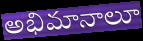
అభిమానాలూ